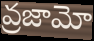
వ్రజామో